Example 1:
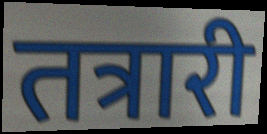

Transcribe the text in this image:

तत्रारी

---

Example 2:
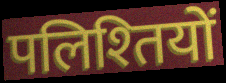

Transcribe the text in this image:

पलिश्‍तियों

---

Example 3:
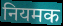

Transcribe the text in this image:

नियमक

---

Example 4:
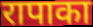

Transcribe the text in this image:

रापाका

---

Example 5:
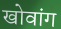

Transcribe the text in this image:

खोवांग